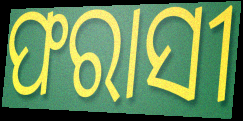
ଫରାସୀ